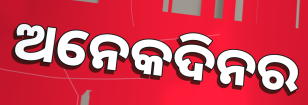
ଅନେକଦିନର